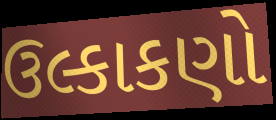
ઉલ્કાકણો